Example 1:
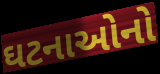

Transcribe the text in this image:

ઘટનાઓનો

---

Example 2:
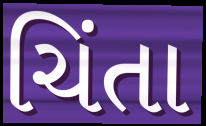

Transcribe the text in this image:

ચિંતા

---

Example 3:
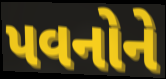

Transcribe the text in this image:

પવનોને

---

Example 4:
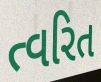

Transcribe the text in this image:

ત્વરિત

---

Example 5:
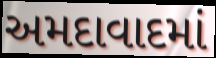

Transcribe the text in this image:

અમદાવાદમાં